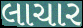
લાચાર